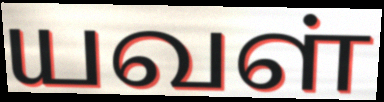
யவள்